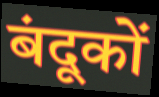
बंदूकों